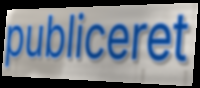
publiceret